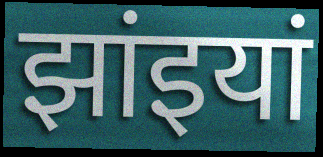
झांइयां